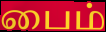
பைம்